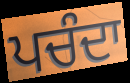
ਪਚੰਦਾ